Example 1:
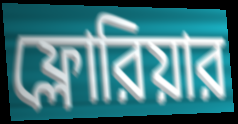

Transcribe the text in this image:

ফ্লোরিয়ার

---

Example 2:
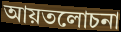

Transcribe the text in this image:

আয়তলোচনা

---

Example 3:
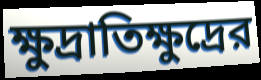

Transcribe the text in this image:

ক্ষুদ্রাতিক্ষুদ্রের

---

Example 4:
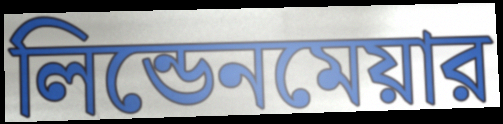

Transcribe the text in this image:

লিন্ডেনমেয়ার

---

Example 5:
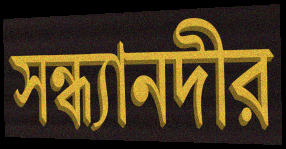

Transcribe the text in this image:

সন্ধ্যানদীর